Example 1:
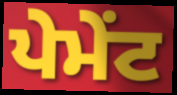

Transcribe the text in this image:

ਪੇਮੇਂਟ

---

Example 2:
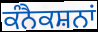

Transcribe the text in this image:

ਕੰਨੈਕਸ਼ਨਾਂ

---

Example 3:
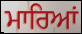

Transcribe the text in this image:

ਮਾਰਿਆਂ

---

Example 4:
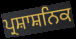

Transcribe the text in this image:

ਪ੍ਰਸ਼ਾਸ਼ਨਿਕ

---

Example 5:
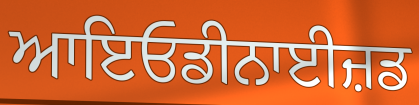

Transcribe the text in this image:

ਆਇਓਡੀਨਾਈਜ਼ਡ